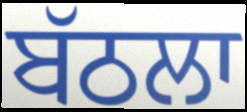
ਬੱਠਲਾ